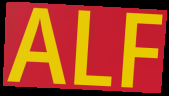
ALF